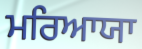
ਮਰਿਆਯਾ